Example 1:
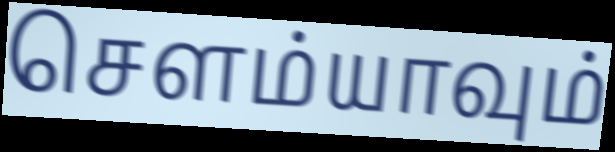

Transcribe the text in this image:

சௌம்யாவும்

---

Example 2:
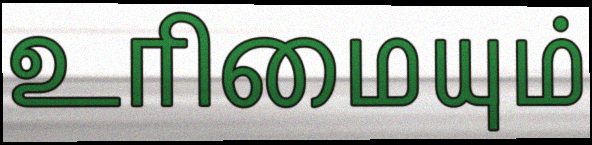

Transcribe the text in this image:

உரிமையும்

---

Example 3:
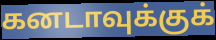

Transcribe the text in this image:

கனடாவுக்குக்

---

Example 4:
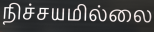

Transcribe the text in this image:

நிச்சயமில்லை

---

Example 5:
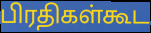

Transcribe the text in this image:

பிரதிகள்கூட